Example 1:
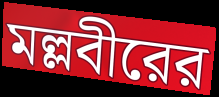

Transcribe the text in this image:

মল্লবীরের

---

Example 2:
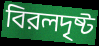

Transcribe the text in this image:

বিরলদৃষ্ট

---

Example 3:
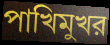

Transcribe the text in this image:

পাখিমুখর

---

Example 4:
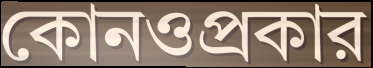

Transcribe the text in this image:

কোনওপ্রকার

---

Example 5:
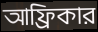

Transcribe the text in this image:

আফ্রিকার